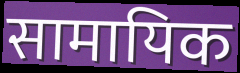
सामायिक